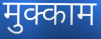
मुक्काम